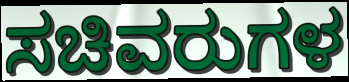
ಸಚಿವರುಗಳ